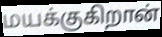
மயக்குகிறான்